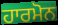
ਹਾਰਮੋਨ